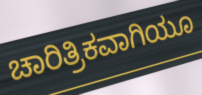
ಚಾರಿತ್ರಿಕವಾಗಿಯೂ